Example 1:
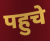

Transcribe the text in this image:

पहुचे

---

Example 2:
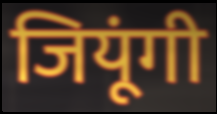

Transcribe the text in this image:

जियूंगी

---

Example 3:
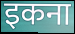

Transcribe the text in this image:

इकना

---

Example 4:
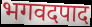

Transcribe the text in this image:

भगवदपाद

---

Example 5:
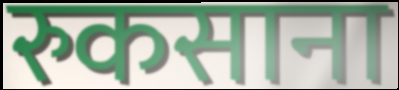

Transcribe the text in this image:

रुकसाना